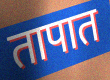
तापात